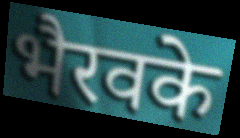
भैरवके